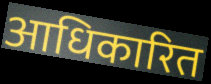
आधिकारित